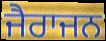
ਜੈਰਾਜਨ